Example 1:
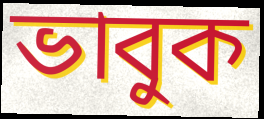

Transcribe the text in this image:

ভাবুক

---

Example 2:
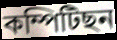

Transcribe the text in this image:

কম্পিটিছন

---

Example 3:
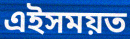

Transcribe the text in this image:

এইসময়ত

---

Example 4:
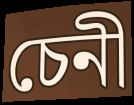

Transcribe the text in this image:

চেনী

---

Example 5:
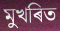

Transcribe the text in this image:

মুখৰিত